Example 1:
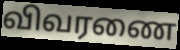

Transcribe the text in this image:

விவரணை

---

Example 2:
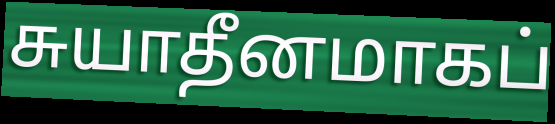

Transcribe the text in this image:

சுயாதீனமாகப்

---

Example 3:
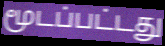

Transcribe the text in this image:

மூடப்பட்டது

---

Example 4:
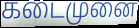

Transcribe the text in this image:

கடைமுனை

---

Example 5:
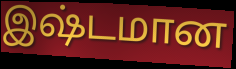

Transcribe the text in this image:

இஷ்டமான